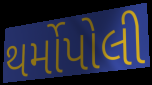
થર્મોપોલી